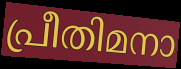
പ്രീതിമനാ